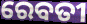
ରେବତୀ